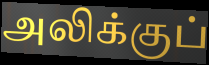
அலிக்குப்